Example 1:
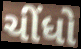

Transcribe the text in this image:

ચીંધો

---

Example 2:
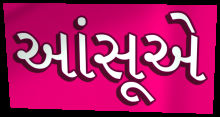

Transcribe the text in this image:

આંસૂએ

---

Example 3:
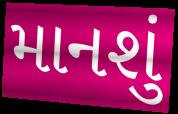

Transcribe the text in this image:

માનશું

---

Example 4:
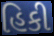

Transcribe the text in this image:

હિકી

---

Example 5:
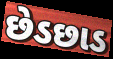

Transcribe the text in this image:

છેડછાડ